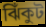
ঝিঁকুট